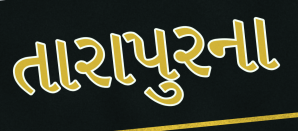
તારાપુરના